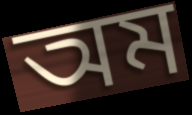
অম